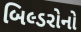
બિલ્ડરોનો